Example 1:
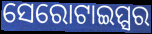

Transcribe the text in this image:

ସେରୋଟାଇପ୍ସର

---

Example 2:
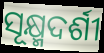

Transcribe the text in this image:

ସୂକ୍ଷ୍ମଦର୍ଶୀ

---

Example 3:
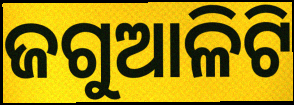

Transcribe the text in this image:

ଜଗୁଆଳିଟି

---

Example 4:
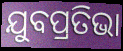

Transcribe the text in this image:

ଯୁବପ୍ରତିଭା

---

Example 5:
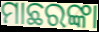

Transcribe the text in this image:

ମାଛରଙ୍କା